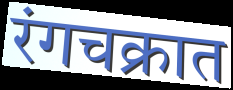
रंगचक्रात